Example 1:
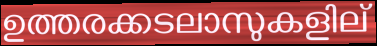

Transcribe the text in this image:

ഉത്തരക്കടലാസുകളില്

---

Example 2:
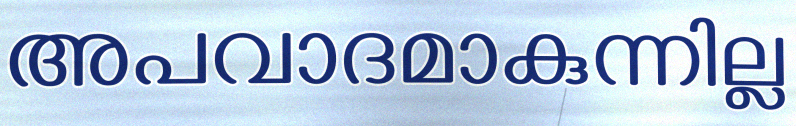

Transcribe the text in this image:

അപവാദമാകുന്നില്ല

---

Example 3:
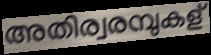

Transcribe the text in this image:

അതിര്വരമ്പുകള്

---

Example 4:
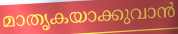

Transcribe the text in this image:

മാതൃകയാക്കുവാൻ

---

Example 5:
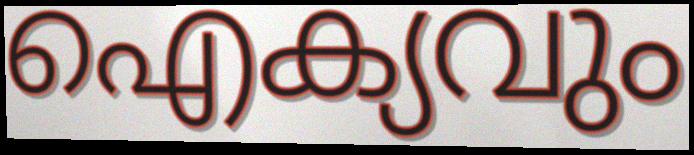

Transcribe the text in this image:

ഐക്യവും